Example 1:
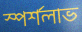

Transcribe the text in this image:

স্পর্শলাভ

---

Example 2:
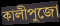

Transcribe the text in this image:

কালীপুজো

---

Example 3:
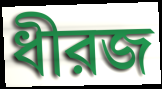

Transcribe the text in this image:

ধীরজ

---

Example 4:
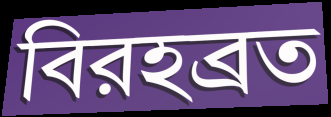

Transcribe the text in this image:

বিরহব্রত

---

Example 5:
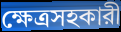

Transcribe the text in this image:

ক্ষেত্রসহকারী